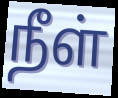
நீள்